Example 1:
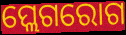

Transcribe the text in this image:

ପ୍ଲେଗରୋଗ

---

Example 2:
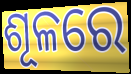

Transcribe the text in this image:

ଶୂଳରେ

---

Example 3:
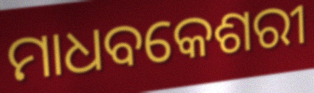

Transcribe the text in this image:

ମାଧବକେଶରୀ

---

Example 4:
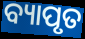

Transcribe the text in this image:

ବ୍ୟାପୃତ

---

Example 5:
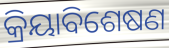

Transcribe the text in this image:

କ୍ରିୟାବିଶେଷଣ